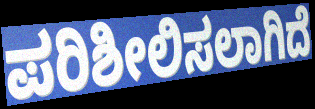
ಪರಿಶೀಲಿಸಲಾಗಿದೆ